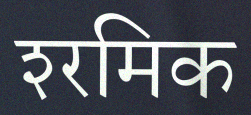
श्रमिक